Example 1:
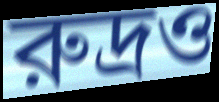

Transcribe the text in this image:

রুদ্রও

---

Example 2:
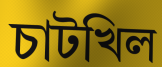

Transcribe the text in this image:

চাটখিল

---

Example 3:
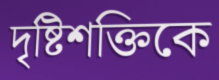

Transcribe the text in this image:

দৃষ্টিশক্তিকে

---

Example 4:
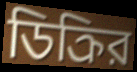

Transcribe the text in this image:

ডিক্রির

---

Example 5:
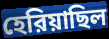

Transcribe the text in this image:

হেরিয়াছিল